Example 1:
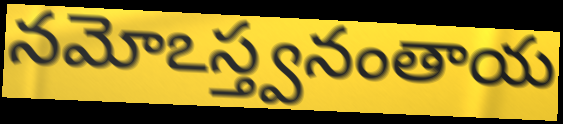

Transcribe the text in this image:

నమోఽస్త్వనంతాయ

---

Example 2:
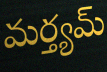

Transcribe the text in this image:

మర్త్యమ్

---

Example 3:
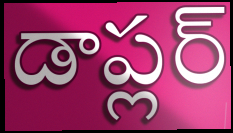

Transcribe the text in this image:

డాప్లర్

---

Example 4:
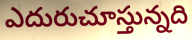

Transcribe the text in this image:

ఎదురుచూస్తున్నది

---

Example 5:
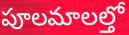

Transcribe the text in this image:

పూలమాలల్తో